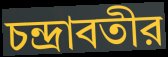
চন্দ্রাবতীর